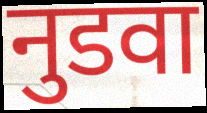
नुडवा